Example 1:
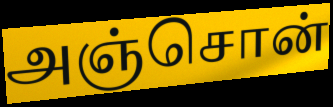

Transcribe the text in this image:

அஞ்சொன்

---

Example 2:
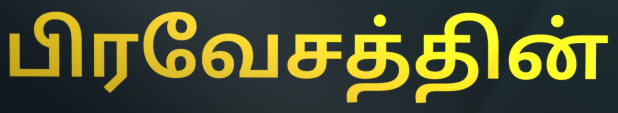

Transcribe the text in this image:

பிரவேசத்தின்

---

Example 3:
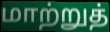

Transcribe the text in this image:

மாற்றுத்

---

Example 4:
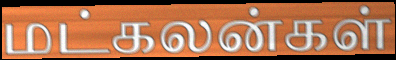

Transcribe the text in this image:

மட்கலன்கள்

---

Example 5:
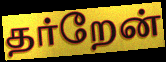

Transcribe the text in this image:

தர்றேன்